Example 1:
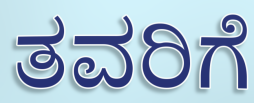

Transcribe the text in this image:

ತವರಿಗೆ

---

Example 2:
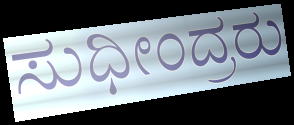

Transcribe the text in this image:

ಸುಧೀಂದ್ರರು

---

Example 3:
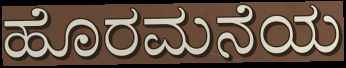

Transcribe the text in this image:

ಹೊರಮನೆಯ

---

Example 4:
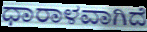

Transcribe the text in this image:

ಧಾರಾಳವಾಗಿದೆ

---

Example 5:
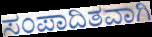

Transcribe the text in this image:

ಸಂಪಾದಿತವಾಗಿ